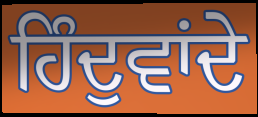
ਹਿੰਦੁਵਾਂਦੇ